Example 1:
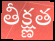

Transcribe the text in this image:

తీక్ష్ణత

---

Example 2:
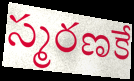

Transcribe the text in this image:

స్మరణకే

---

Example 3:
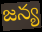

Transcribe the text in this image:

జన్య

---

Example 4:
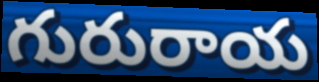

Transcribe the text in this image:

గురురాయ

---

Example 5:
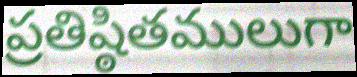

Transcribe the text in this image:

ప్రతిష్ఠితములుగా